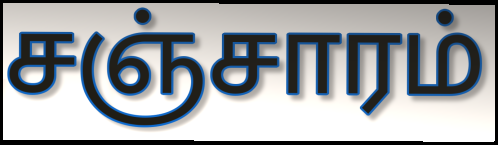
சஞ்சாரம்